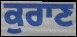
ਕੁਰਾਣ